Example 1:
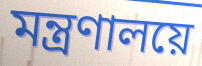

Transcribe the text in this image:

মন্ত্রণালয়ে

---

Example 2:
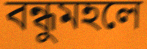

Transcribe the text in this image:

বন্ধুমহলে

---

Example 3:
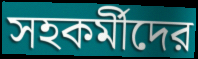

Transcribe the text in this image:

সহকর্মীদের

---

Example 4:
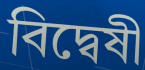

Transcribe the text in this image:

বিদ্বেষী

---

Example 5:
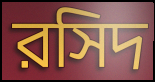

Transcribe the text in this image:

রসিদ